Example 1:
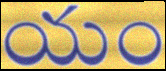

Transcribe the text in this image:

యం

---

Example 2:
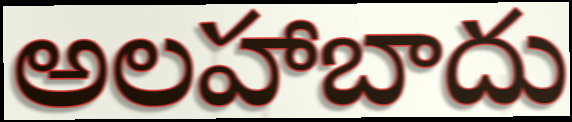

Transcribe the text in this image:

అలహాబాదు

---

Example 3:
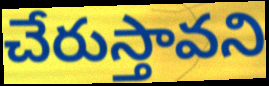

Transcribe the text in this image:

చేరుస్తావని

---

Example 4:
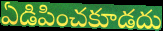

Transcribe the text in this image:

ఏడిపించకూడదు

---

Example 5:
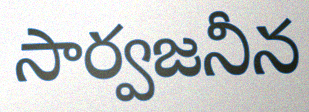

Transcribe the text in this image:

సార్వజనీన